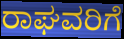
ರಾಘವರಿಗೆ